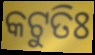
କଟୁତିଃ